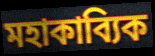
মহাকাব্যিক